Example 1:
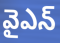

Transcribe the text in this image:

వైఎన్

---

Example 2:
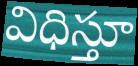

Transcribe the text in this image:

విధిస్తూ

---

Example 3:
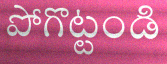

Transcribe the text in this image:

పోగొట్టండి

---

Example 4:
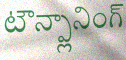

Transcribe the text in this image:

టౌన్ప్లానింగ్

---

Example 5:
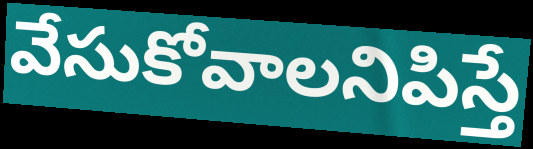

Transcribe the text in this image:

వేసుకోవాలనిపిస్తే